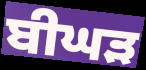
ਬੀਘੜ